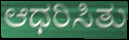
ಆಧರಿಸಿತು